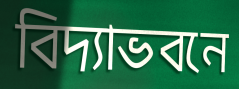
বিদ্যাভবনে